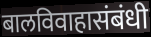
बालविवाहासंबंधी